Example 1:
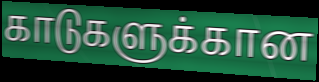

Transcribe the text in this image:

காடுகளுக்கான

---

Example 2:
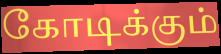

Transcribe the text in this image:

கோடிக்கும்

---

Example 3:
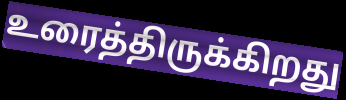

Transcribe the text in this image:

உரைத்திருக்கிறது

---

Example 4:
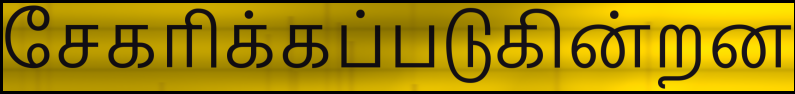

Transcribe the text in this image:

சேகரிக்கப்படுகின்றன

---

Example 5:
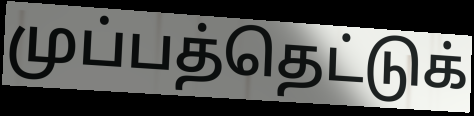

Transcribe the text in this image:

முப்பத்தெட்டுக்